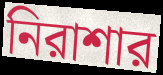
নিরাশার